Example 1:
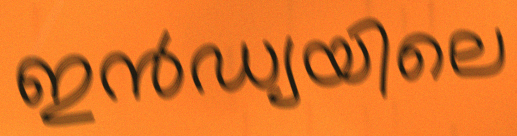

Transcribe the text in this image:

ഇൻഡ്യയിലെ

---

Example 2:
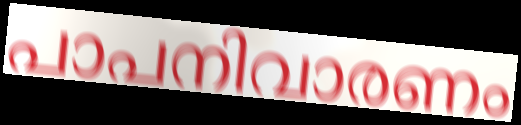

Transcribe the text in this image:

പാപനിവാരണം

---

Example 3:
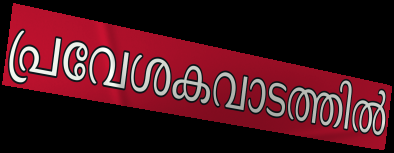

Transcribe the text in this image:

പ്രവേശകവാടത്തിൽ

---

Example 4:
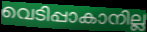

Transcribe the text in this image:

വെടിപ്പാകാനില്ല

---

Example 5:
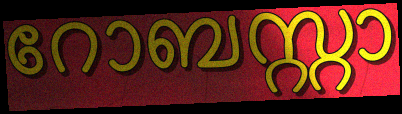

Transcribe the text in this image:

റോബസ്റ്റാ